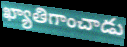
ఖ్యాతిగాంచాడు